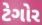
ટેગોર